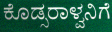
ಕೊಡ್ಸರಾಳ್ವನಿಗೆ